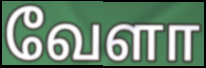
வேளா